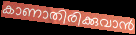
കാണാതിരിക്കുവാൻ